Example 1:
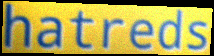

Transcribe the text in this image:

hatreds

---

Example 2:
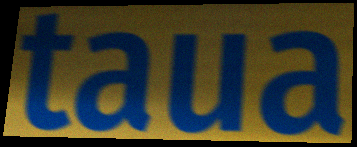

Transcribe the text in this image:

taua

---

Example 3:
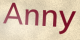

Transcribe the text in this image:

Anny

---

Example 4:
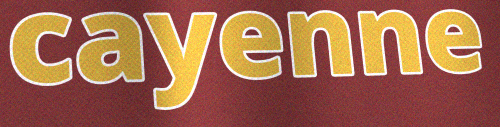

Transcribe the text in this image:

cayenne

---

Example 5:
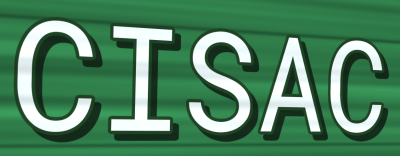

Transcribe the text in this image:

CISAC